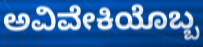
ಅವಿವೇಕಿಯೊಬ್ಬ